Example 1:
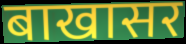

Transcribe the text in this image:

बाखासर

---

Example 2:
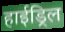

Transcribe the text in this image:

हाईड्रिल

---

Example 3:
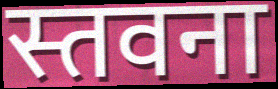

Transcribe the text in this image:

स्तवना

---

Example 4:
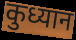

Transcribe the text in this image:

कुध्यान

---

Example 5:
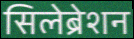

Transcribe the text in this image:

सिलेब्रेशन